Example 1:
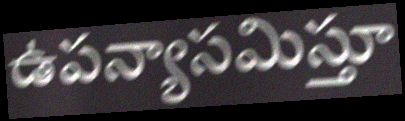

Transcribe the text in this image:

ఉపన్యాసమిస్తూ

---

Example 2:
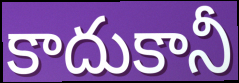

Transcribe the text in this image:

కాదుకానీ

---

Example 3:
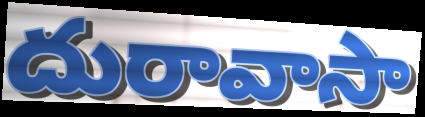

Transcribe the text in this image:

దురావాసా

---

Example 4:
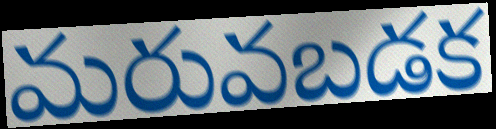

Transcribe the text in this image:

మరువబడక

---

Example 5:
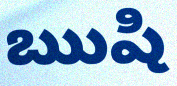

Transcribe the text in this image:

ఋషి